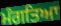
ਮੰਗਤਿਆ